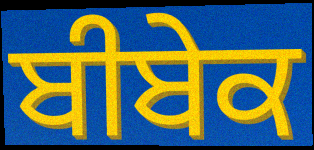
ਬੀਬੇਕ